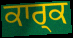
ਕਾਰ੍ਕ